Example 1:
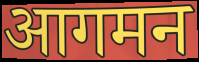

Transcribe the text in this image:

आगमन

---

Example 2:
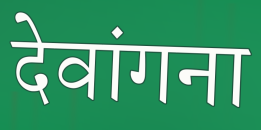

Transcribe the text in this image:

देवांगना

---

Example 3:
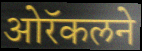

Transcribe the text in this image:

ओरॅकलने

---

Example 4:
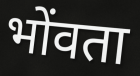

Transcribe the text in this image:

भोंवता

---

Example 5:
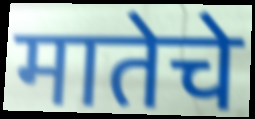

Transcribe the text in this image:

मातेचे